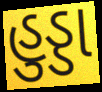
હુડ્ડા